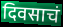
दिवसाचं